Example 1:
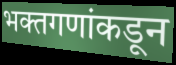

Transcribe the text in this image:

भक्तगणांकडून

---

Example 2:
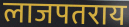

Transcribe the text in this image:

लाजपतराय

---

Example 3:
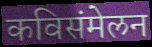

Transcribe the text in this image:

कविसंमेलन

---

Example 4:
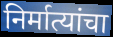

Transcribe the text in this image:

निर्मात्यांचा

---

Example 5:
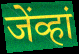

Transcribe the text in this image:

जेंव्हां